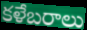
కళేబరాలు